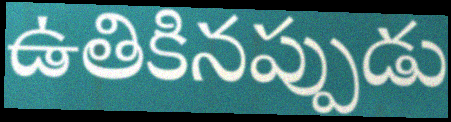
ఉతికినప్పుడు